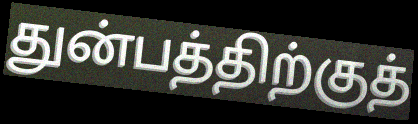
துன்பத்திற்குத்